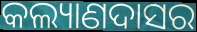
କଲ୍ୟାଣଦାସର